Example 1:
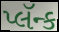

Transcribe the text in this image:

પ્લૅન્ક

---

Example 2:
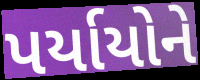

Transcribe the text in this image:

પર્યાયોને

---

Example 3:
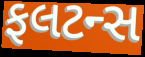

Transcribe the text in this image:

ફલટન્સ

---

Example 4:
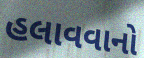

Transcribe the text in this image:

હલાવવાનો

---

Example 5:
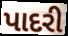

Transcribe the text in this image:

પાદરી